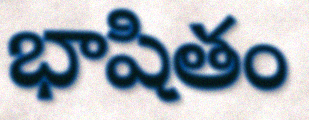
భాషితం